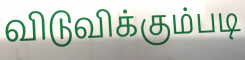
விடுவிக்கும்படி